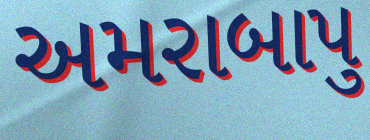
અમરાબાપુ